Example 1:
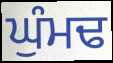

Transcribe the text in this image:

ਘੁੰਮਢ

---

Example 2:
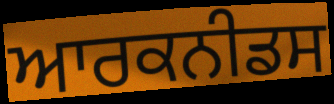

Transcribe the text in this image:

ਆਰਕਨੀਡਸ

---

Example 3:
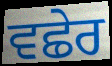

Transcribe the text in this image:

ਵਛੇਰ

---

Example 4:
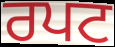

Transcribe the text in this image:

ਰਪਟ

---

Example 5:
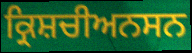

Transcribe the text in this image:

ਕ੍ਰਿਸ਼ਚੀਅਨਸਨ